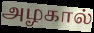
அழகால்